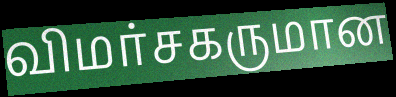
விமர்சகருமான